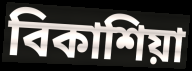
বিকাশিয়া